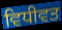
ਵਿਧੀਵਤ